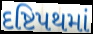
દષ્ટિપથમાં